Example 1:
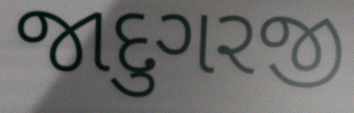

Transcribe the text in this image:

જાદુગરજી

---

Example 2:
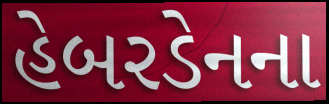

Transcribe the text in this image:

હેબરડેનના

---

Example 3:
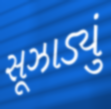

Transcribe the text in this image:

સૂઝાડ્યું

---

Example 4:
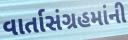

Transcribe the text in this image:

વાર્તાસંગ્રહમાંની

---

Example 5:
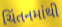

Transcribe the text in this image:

ચિંતનમાંથી